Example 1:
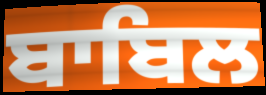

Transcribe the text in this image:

ਬਾਬਿਲ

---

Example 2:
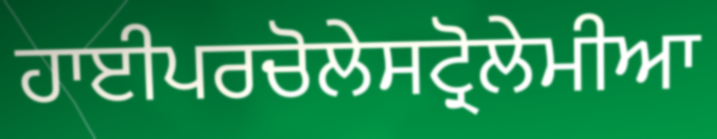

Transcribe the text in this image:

ਹਾਈਪਰਚੋਲੇਸਟ੍ਰੋਲੇਮੀਆ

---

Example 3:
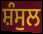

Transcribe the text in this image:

ਸ਼ੰਸੁਲ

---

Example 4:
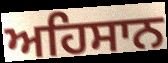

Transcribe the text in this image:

ਅਹਿਸਾਨ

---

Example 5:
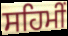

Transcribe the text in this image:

ਸਹਿਮੀਂ